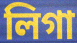
লিগা